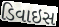
ડિવાઇસ